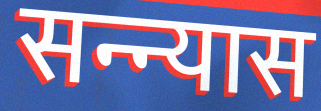
सन्न्यास